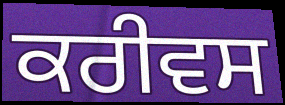
ਕਰੀਵਸ